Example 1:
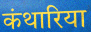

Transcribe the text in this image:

कंथारिया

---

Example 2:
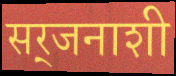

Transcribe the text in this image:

सर्जनाशी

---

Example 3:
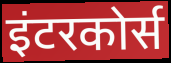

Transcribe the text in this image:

इंटरकोर्स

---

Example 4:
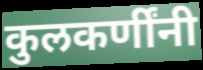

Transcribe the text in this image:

कुलकर्णींनी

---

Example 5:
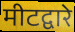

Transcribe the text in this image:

मीटद्वारे